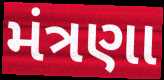
મંત્રણા